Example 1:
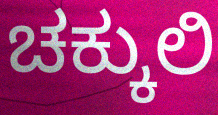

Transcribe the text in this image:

ಚಕ್ಕುಲಿ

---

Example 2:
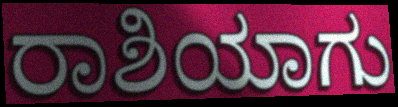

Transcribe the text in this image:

ರಾಶಿಯಾಗು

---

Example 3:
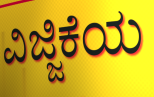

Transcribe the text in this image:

ವಿಜ್ಜಿಕೆಯ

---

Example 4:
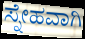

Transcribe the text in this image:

ಸ್ನೇಹವಾಗಿ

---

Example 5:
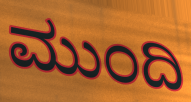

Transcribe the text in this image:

ಮುಂದಿ